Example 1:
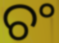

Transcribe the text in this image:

ଚଂ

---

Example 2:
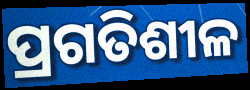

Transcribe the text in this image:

ପ୍ରଗତିଶୀଳ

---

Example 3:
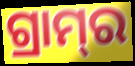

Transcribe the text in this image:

ଗ୍ରାମ୍‌ର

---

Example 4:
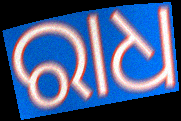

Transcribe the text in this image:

ରାଧ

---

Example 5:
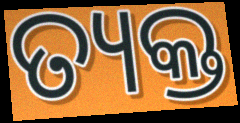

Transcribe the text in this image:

ତ୍ୟକ୍ତ